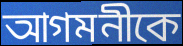
আগমনীকে